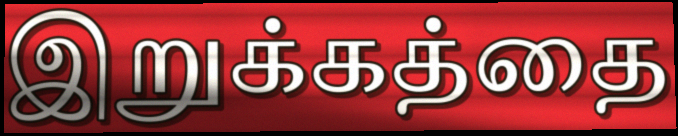
இறுக்கத்தை